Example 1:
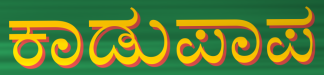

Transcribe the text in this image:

ಕಾಡುಪಾಪ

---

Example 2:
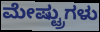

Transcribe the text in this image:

ಮೇಷ್ಟ್ರುಗಳು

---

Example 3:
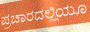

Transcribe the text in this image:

ಪ್ರಚಾರದಲ್ಲಿಯೂ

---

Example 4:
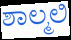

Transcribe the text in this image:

ಶಾಲ್ಮಲಿ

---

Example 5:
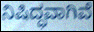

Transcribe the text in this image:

ನಿಷಿದ್ಧವಾಗಿವೆ